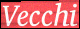
Vecchi